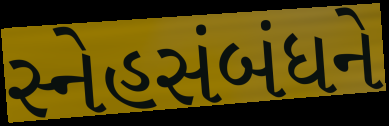
સ્નેહસંબંધને